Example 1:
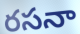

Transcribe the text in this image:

రసనా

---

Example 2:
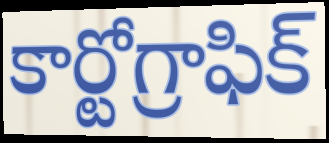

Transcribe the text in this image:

కార్టోగ్రాఫిక్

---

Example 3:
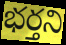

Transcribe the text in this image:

భర్తని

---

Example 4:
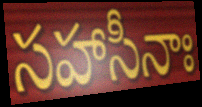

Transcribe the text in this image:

సహాసీనాః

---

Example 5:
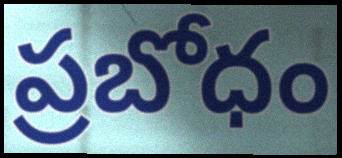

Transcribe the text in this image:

ప్రబోధం